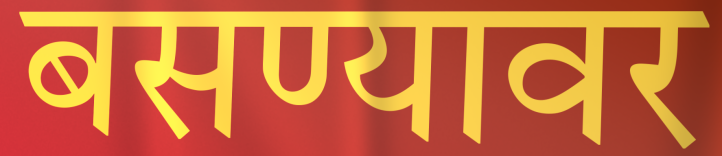
बसण्यावर